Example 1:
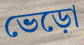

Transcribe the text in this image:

ভেড়ো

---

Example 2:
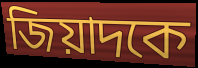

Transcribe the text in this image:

জিয়াদকে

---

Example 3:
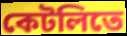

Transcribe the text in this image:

কেটলিতে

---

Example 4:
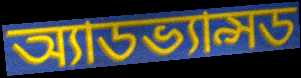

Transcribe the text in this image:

অ্যাডভ্যান্সড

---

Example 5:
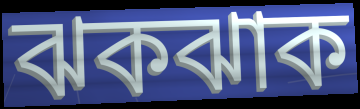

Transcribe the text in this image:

ঝকঝাক